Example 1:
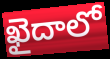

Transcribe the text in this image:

ఖైదాలో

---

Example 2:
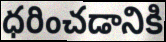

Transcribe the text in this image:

ధరించడానికి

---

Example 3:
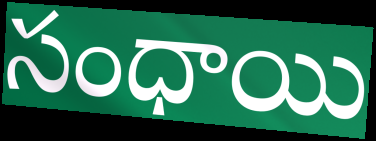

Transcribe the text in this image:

సంధాయి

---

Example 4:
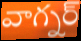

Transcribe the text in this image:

వాగ్నర్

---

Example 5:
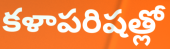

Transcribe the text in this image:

కళాపరిషత్లో